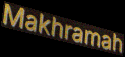
Makhramah